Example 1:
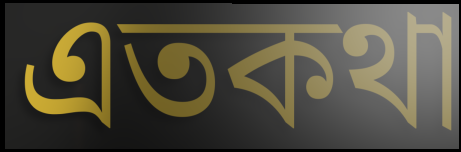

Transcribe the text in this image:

এতকথা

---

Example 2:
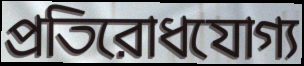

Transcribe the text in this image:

প্রতিরোধযোগ্য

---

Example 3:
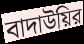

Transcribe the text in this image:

বাদাউয়ির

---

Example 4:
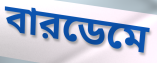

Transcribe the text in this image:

বারডেমে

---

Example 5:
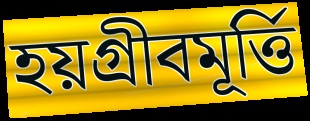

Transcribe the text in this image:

হয়গ্রীবমূর্ত্তি